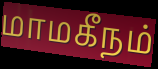
மாமகீநம்